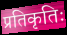
प्रतिकृतिः